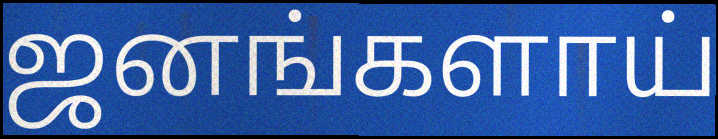
ஜனங்களாய்